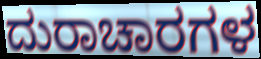
ದುರಾಚಾರಗಳ